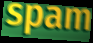
spam